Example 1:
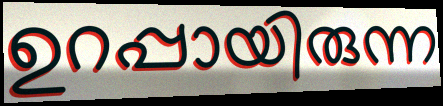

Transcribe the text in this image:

ഉറപ്പായിരുന്ന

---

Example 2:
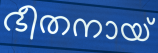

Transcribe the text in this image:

ഭീതനായ്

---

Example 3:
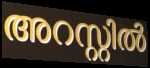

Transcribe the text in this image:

അറസ്റ്റിൽ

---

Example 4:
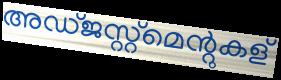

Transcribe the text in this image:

അഡ്ജസ്റ്റ്മെന്റുകള്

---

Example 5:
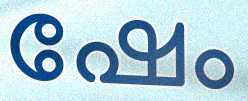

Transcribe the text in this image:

ഷേം